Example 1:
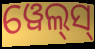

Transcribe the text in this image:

ୱେଲ୍‌ସ୍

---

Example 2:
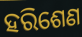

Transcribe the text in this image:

ହରିଶେଣ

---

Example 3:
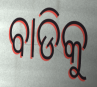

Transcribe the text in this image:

ବାଡିକୁ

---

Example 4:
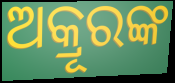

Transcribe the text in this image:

ଅକ୍ରୂରଙ୍କ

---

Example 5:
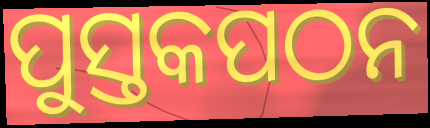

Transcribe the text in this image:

ପୁସ୍ତକପଠନ